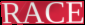
RACE